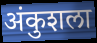
अंकुशला